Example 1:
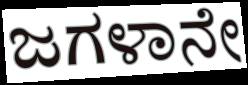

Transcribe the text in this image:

ಜಗಳಾನೇ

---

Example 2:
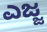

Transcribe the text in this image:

ಎಜ್ಜ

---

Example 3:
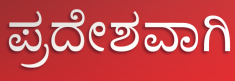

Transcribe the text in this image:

ಪ್ರದೇಶವಾಗಿ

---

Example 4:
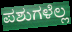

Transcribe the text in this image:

ಪಶುಗಳೆಲ್ಲ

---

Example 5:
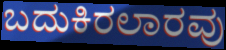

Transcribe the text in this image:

ಬದುಕಿರಲಾರವು